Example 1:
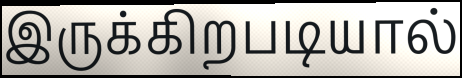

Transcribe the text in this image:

இருக்கிறபடியால்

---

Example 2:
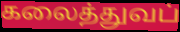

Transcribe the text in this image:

கலைத்துவப்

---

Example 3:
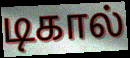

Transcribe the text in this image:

டிகால்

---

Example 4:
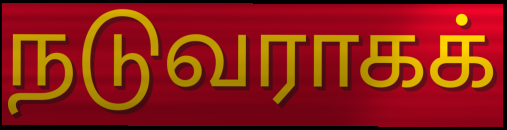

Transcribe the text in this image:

நடுவராகக்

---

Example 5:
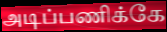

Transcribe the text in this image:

அடிப்பணிக்கே